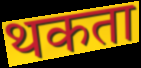
थकता